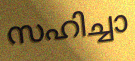
സഹിച്ചാ